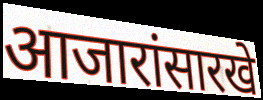
आजारांसारखे